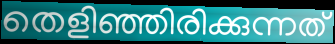
തെളിഞ്ഞിരിക്കുന്നത്